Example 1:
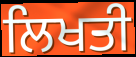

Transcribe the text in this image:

ਲਿਖਤੀ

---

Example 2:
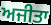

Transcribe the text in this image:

ਅਜੀਤਾ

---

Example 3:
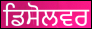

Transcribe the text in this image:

ਡਿਸੋਲਵਰ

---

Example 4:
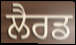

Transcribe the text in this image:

ਲੈਰਡ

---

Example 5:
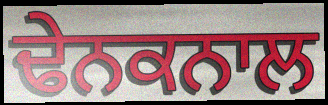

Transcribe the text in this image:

ਢੇਨਕਨਾਲ